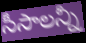
సీసాలన్నీ